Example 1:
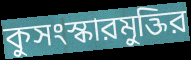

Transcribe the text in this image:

কুসংস্কারমুক্তির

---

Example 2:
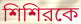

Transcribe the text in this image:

শিশিরকে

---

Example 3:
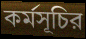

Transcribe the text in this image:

কর্মসূচির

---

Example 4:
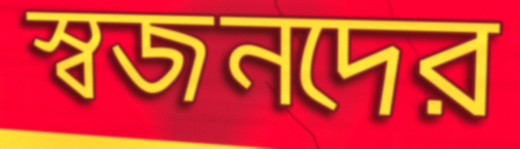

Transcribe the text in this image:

স্বজনদের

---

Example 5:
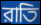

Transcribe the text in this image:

রাতি